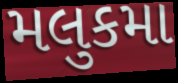
મલુકમા